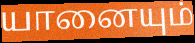
யானையும்